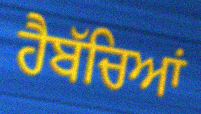
ਹੈਬੱਚਿਆਂ